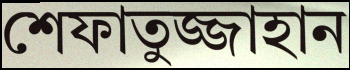
শেফাতুজ্জাহান